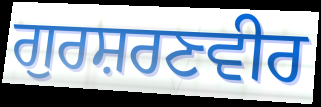
ਗੁਰਸ਼ਰਣਵੀਰ